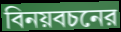
বিনয়বচনের